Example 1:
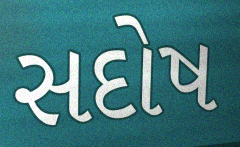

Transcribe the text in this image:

સદોષ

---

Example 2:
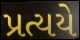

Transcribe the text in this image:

પ્રત્યયે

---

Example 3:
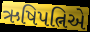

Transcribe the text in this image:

ઋષિપત્નિએ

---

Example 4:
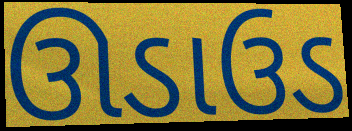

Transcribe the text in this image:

ઊડાઉડ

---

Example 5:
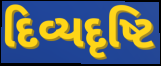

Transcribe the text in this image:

દિવ્યદૃષ્ટિ